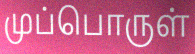
முப்பொருள்